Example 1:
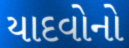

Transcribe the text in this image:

યાદવોનો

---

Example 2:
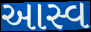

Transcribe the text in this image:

આસ્વ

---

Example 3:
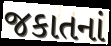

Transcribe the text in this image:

જકાતનાં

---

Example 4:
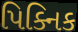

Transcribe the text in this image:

પિક્નિક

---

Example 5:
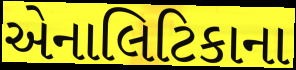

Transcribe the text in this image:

એનાલિટિકાના